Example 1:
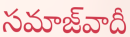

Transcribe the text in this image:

సమాజ్‌వాదీ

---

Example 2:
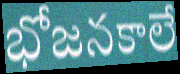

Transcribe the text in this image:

భోజనకాలే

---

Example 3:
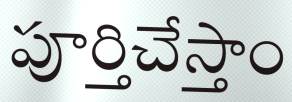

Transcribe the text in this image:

పూర్తిచేస్తాం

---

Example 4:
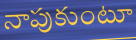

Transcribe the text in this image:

నాపుకుంటూ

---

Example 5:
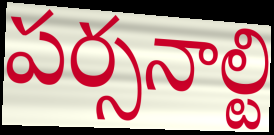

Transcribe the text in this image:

పర్సనాల్టి